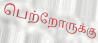
பெற்றோருக்கு